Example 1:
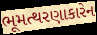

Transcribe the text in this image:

ભૂમત્થરણાકારેન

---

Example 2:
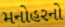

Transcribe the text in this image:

મનોહરનો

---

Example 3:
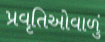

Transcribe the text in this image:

પ્રવૃતિઓવાળું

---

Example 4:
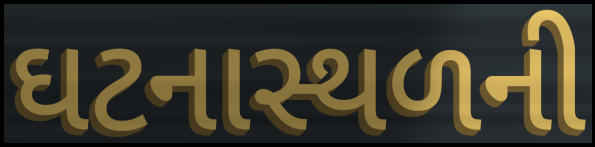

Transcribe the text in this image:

ઘટનાસ્થળની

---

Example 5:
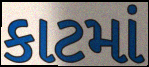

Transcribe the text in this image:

કાટમાં